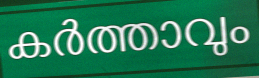
കർത്താവും